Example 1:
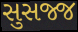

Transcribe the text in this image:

સુસજ્જ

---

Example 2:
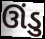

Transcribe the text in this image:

ઊંડુ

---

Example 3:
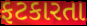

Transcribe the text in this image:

ફટકારતા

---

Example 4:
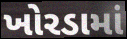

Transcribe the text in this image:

ખોરડામાં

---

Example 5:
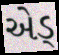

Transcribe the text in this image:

એડ્